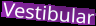
Vestibular